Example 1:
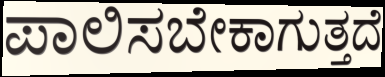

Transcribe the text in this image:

ಪಾಲಿಸಬೇಕಾಗುತ್ತದೆ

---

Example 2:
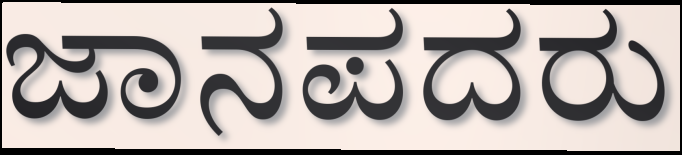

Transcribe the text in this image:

ಜಾನಪದರು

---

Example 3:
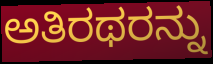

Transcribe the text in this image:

ಅತಿರಥರನ್ನು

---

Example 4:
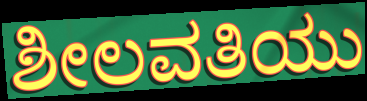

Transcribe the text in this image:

ಶೀಲವತಿಯು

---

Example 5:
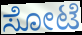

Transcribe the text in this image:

ಸೋಟೆ